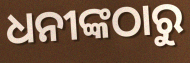
ଧନୀଙ୍କଠାରୁ